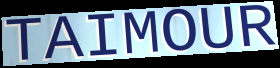
TAIMOUR